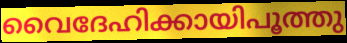
വൈദേഹിക്കായിപൂത്തു